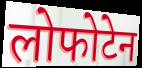
लोफोटेन